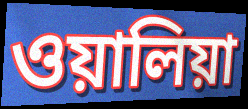
ওয়ালিয়া